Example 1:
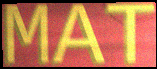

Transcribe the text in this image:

MAT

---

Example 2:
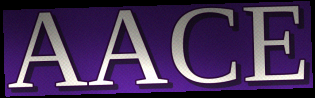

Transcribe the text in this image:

AACE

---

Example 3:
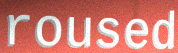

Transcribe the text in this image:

roused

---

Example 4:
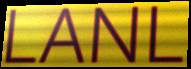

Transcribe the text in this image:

LANL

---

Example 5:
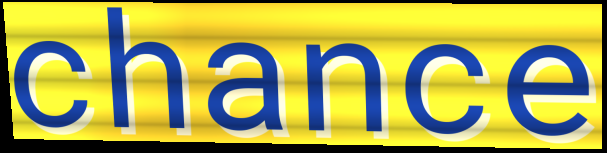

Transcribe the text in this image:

chance